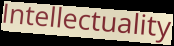
Intellectuality